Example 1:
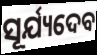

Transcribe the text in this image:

ସୂର୍ଯ୍ୟଦେବ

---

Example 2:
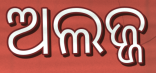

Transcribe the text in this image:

ଅଲଜ୍ଜ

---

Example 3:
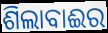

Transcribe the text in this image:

ଶିଲାବାଈର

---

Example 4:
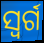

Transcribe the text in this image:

ସ୍ବର୍ଗ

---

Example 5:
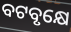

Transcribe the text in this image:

ବଟବୃକ୍ଷେ